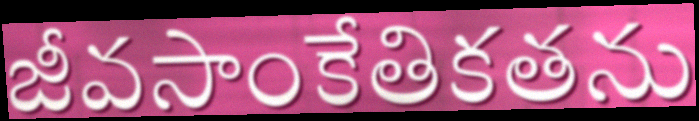
జీవసాంకేతికతను